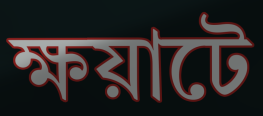
ক্ষয়াটে